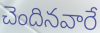
చెందినవారే